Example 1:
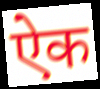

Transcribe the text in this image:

ऐक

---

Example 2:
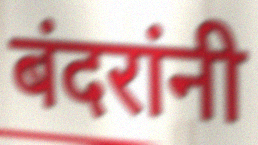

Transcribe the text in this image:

बंदरांनी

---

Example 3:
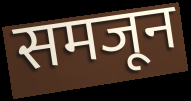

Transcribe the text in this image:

समजून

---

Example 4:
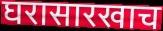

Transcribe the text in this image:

घरासारखाच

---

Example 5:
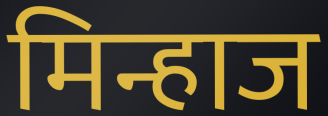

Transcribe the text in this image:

मिन्हाज